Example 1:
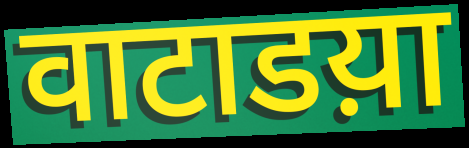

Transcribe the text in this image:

वाटाडय़ा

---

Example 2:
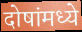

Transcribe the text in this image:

दोषांमध्ये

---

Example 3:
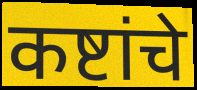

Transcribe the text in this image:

कष्टांचे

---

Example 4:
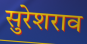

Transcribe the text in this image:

सुरेशराव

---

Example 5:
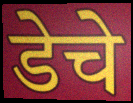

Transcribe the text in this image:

डेचे